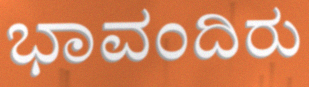
ಭಾವಂದಿರು